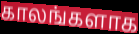
காலங்களாக